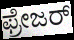
ಫ್ರೇಜರ್